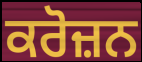
ਕਰੋਜ਼ਨ